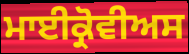
ਮਾਈਕ੍ਰੋਵੀਅਸ